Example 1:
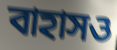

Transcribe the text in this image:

বাহাসও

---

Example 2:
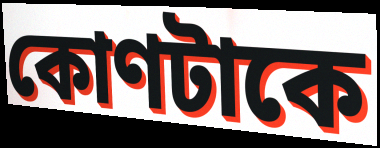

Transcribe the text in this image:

কোণটাকে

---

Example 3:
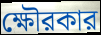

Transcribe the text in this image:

ক্ষৌরকার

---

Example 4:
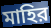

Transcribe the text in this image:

মাহির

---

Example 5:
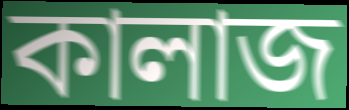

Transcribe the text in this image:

কালাজ